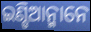
ଇଣ୍ଡିଆନ୍ମାନେ